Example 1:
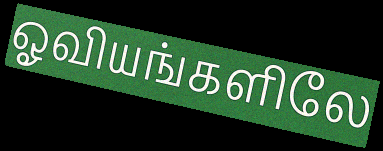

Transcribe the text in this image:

ஓவியங்களிலே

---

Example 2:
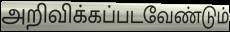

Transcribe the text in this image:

அறிவிக்கப்படவேண்டும்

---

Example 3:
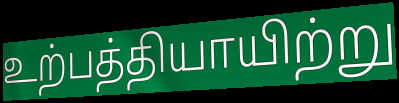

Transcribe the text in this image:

உற்பத்தியாயிற்று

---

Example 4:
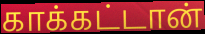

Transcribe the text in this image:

காக்கட்டான்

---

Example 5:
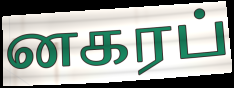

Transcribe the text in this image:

னகரப்